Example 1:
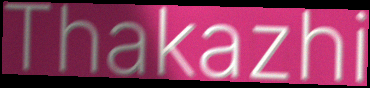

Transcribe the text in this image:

Thakazhi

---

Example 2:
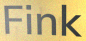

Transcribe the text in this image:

Fink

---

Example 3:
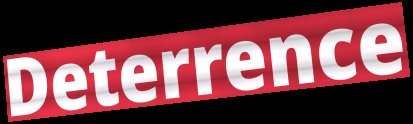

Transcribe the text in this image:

Deterrence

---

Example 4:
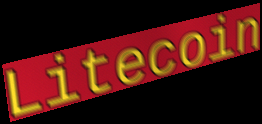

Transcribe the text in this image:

Litecoin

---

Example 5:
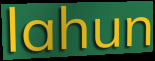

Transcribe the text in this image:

lahun